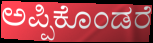
ಅಪ್ಪಿಕೊಂಡರೆ